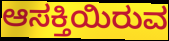
ಆಸಕ್ತಿಯಿರುವ